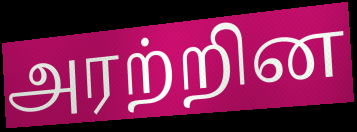
அரற்றின